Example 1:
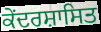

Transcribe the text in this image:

ਕੇਂਦਰਸ਼ਾਸਿਤ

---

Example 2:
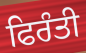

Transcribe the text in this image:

ਫਿਰੰਤੀ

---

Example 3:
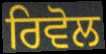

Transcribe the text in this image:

ਰਿਵੋਲ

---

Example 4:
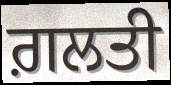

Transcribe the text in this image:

ਗ਼ਲਤੀ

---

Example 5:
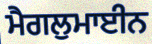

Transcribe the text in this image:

ਮੈਗਲੁਮਾਈਨ